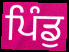
ਪਿੰਡੁ